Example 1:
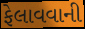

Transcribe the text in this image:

ફેલાવવાની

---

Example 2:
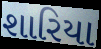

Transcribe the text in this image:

શારિયા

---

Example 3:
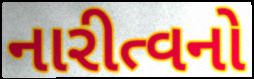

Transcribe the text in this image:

નારીત્વનો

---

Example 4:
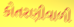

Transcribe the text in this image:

કોતરણીવાળી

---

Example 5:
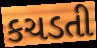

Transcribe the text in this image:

કચડતી